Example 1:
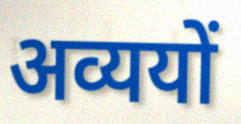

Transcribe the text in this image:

अव्ययों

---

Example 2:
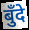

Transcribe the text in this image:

बुँदे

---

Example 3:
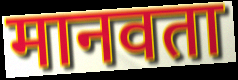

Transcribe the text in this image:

मानवता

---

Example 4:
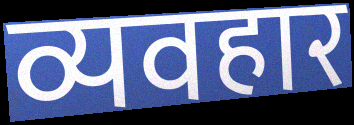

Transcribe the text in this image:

व्यवहार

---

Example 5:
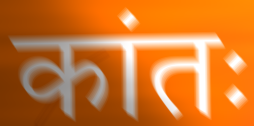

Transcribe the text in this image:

कांतः